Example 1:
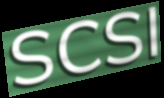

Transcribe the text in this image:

SCSI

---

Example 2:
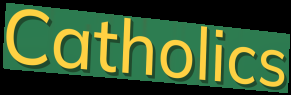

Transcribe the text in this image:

Catholics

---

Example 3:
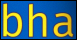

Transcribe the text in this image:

bha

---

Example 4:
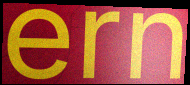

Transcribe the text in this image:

ern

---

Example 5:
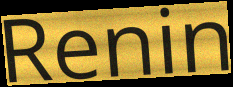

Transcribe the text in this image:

Renin